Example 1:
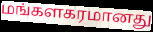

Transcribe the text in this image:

மங்களகரமானது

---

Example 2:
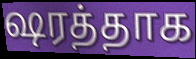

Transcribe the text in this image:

ஷரத்தாக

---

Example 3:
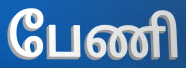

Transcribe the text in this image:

பேணி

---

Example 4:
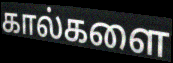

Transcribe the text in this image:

கால்களை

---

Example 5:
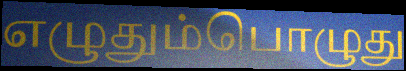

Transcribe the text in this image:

எழுதும்பொழுது